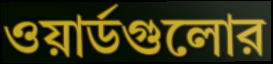
ওয়ার্ডগুলোর